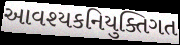
આવશ્યકનિયુક્તિગત